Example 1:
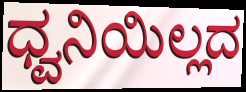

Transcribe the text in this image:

ಧ್ವನಿಯಿಲ್ಲದ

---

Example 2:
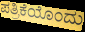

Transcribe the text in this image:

ಪತ್ರಿಕೆಯೊಂದು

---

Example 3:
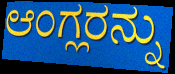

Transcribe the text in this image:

ಆಂಗ್ಲರನ್ನು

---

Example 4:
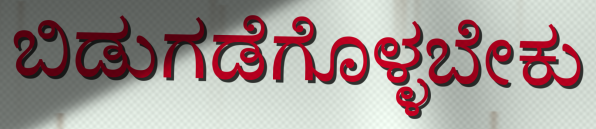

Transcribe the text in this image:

ಬಿಡುಗಡೆಗೊಳ್ಳಬೇಕು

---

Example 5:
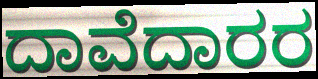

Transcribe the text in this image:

ದಾವೆದಾರರ